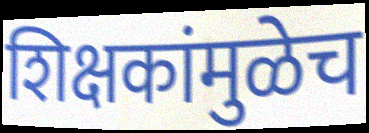
शिक्षकांमुळेच